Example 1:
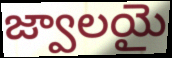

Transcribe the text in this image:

జ్వాలయై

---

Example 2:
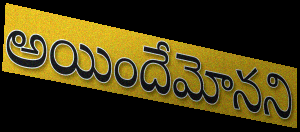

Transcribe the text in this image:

అయిందేమోనని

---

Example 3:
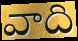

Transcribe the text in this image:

వాది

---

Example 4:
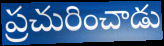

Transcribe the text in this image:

ప్రచురించాడు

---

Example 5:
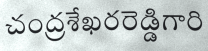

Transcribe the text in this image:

చంద్రశేఖరరెడ్డిగారి